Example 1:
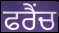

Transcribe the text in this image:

ਫਰੈਂਚ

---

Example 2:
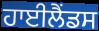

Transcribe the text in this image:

ਹਾਈਲੈਂਡਸ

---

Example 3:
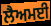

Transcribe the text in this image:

ਲੈਅਮਈ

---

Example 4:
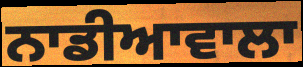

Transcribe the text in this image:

ਨਾਡੀਆਵਾਲਾ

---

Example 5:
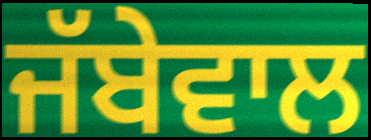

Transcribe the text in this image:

ਜੱਬੇਵਾਲ